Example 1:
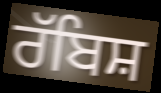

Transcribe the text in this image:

ਰੱਬਿਸ਼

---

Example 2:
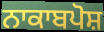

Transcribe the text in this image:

ਨਾਕਾਬਪੋਸ਼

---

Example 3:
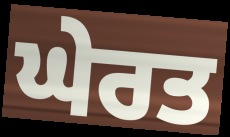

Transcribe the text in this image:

ਘੇਰਤ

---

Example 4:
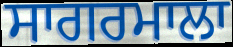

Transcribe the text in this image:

ਸਾਗਰਮਾਲਾ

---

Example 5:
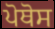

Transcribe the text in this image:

ਪੋਥੋਸ